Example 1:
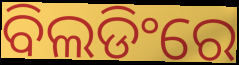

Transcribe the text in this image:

ବିଲଡିଂରେ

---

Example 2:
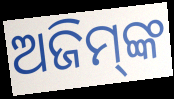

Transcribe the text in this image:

ଅଜିମ୍‌ଙ୍କ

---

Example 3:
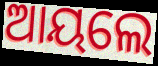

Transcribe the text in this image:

ଆୟଲେ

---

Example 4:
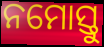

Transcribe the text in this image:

ନମୋସ୍ତୁ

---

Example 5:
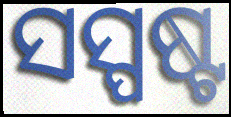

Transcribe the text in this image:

ସସ୍ପଷ୍ଟ